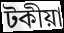
টকীয়া